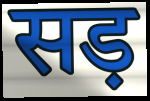
सड़